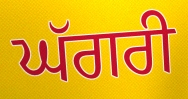
ਘੱਗਰੀ